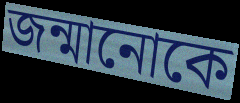
জন্মানোকে